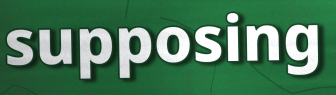
supposing